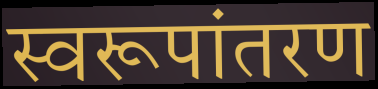
स्वरूपांतरण